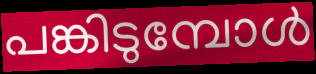
പങ്കിടുമ്പോൾ